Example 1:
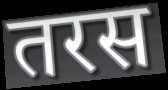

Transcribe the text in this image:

तरस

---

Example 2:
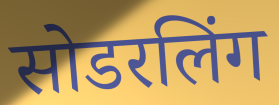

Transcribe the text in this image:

सोडरलिंग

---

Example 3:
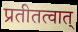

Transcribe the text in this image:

प्रतीतत्वात्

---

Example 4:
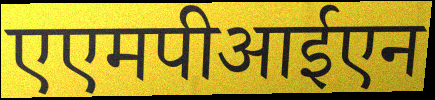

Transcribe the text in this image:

एएमपीआईएन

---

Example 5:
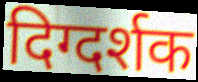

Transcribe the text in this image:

दिग्दर्शक